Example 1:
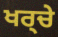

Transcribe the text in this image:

ਖਰ੍ਚੇ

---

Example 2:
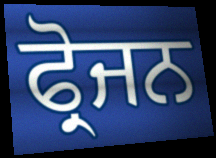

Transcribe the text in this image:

ਫ੍ਰੋਜਨ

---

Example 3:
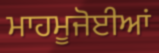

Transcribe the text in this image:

ਮਾਹਮੂਜੋਈਆਂ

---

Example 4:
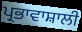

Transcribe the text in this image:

ਪ੍ਰਭਾਵਾਸ਼ਾਲੀ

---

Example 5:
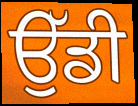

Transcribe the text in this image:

ਉੱਡੀ